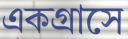
একগ্রাসে